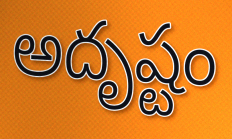
అదృష్టం